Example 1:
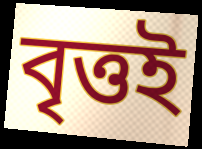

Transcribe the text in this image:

বৃত্তই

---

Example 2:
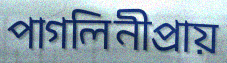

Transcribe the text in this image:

পাগলিনীপ্রায়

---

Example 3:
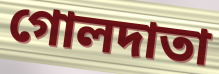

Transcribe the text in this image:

গোলদাতা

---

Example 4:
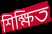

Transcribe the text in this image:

শিক্ষিত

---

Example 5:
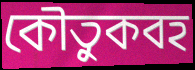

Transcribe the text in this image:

কৌতুকবহ